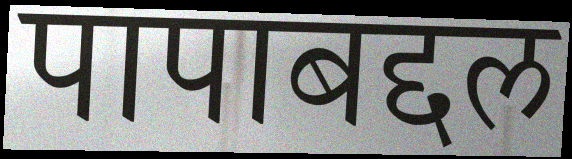
पापाबद्दल